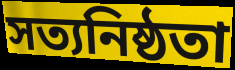
সত্যনিষ্ঠতা